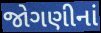
જોગણીનાં